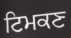
ਟਿਮਕਣ